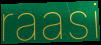
raasi